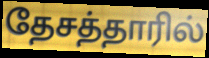
தேசத்தாரில்